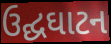
ઉદ્ઘઘાટન